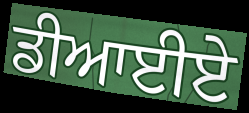
ਡੀਆਈਏ